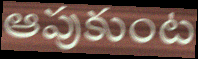
ఆపుకుంట